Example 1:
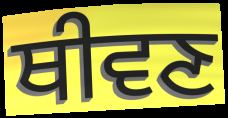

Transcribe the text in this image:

ਥੀਵਣ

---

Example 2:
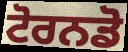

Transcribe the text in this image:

ਟੋਰਨਡੋ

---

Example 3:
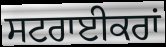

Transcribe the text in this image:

ਸਟਰਾਈਕਰਾਂ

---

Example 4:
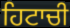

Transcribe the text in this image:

ਹਿਟਾਚੀ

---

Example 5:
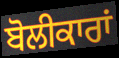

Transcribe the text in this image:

ਬੋਲੀਕਾਰਾਂ